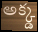
అక్క్డ